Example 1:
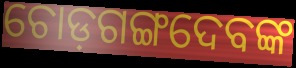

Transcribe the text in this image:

ଚୋଡ଼ଗଙ୍ଗଦେବଙ୍କ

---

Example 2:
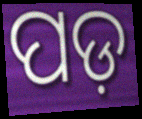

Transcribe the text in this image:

ପଡ଼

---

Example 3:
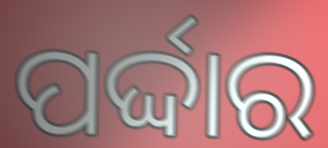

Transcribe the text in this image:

ପର୍ଦ୍ଦାର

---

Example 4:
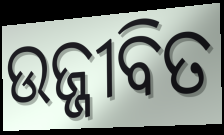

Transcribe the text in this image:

ଉଜ୍ଜୀବିତ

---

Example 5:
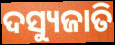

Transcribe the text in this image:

ଦସ୍ୟୁଜାତି